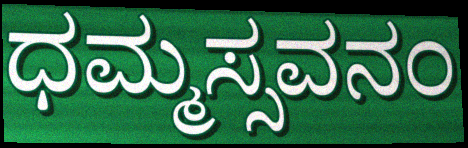
ಧಮ್ಮಸ್ಸವನಂ